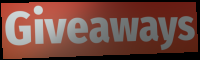
Giveaways